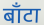
बाँटा